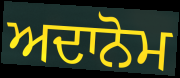
ਅਦਾਨੋਮ